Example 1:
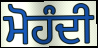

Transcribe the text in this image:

ਮੋਹੰਦੀ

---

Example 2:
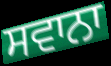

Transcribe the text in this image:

ਸਵਾਨਾ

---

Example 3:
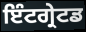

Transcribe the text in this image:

ਇੰਟਗ੍ਰੇਟਡ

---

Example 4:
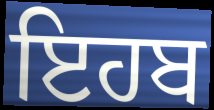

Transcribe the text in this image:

ਇਹਬ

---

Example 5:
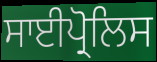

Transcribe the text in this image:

ਸਾਈਪ੍ਰੋਲਿਸ